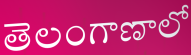
తెలంగాణాలో